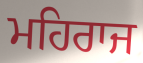
ਮਹਿਰਾਜ